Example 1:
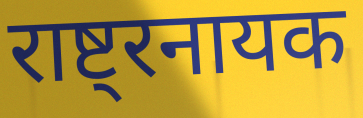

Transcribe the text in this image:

राष्ट्रनायक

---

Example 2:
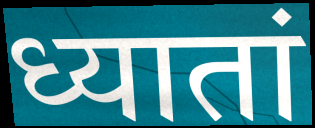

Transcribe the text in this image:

ध्यातां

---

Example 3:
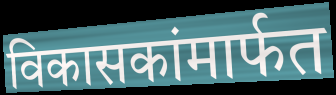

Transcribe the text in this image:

विकासकांमार्फत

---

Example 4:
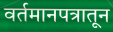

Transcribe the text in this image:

वर्तमानपत्रातून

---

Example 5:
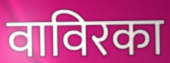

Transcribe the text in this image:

वाविरका